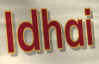
Idhai